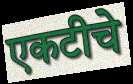
एकटीचे